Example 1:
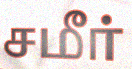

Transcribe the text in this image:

சமீர்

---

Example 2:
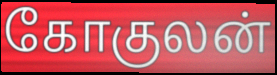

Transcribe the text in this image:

கோகுலன்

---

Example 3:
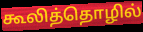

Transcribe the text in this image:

கூலித்தொழில்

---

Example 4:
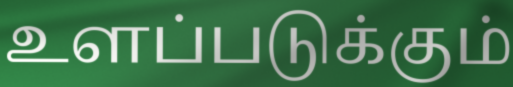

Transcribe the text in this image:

உளப்படுக்கும்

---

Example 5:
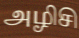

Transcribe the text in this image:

அழிசி